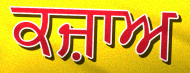
ਕਜ਼ਾਅ